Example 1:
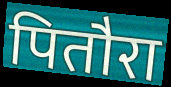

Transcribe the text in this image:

पितौरा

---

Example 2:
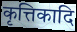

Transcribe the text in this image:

कृत्तिकादि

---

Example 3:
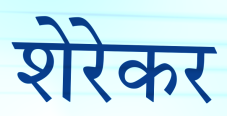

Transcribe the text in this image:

शेरेकर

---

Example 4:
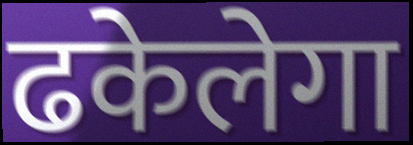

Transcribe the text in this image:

ढकेलेगा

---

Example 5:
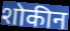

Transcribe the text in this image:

शोकीन